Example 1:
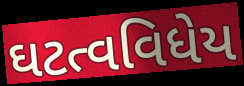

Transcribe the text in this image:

ઘટત્વવિધેય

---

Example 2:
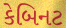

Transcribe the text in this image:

કેબિનટ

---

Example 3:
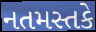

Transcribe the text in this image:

નતમસ્તકે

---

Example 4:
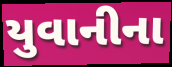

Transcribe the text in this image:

યુવાનીના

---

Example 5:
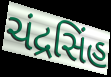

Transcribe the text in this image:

ચંદ્રસિંહ